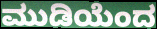
ಮುಡಿಯೆಂದ